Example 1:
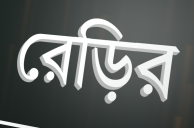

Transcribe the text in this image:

রেড়ির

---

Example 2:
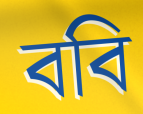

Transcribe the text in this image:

ববি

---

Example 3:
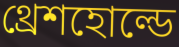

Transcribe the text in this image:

থ্রেশহোল্ডে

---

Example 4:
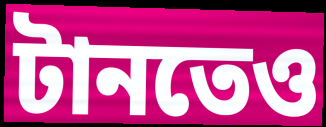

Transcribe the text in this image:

টানতেও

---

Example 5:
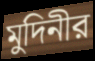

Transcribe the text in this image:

মুদিনীর